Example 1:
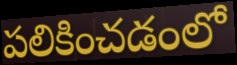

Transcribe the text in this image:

పలికించడంలో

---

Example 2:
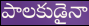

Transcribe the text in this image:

పాలకుడైనా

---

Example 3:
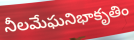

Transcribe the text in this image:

నీలమేఘనిభాకృతిం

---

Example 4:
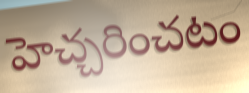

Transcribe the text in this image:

హెచ్చరించటం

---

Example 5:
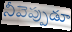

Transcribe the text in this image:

నీవెప్పుడూ